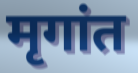
मृगांत